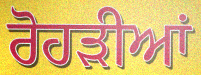
ਰੋਹੜੀਆਂ